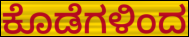
ಕೊಡೆಗಳಿಂದ